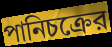
পানিচক্রের